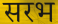
सरभ